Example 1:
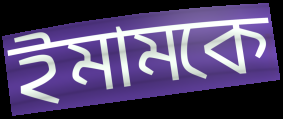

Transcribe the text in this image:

ইমামকে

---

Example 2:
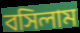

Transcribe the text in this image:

বসিলাম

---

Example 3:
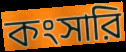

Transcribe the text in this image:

কংসারি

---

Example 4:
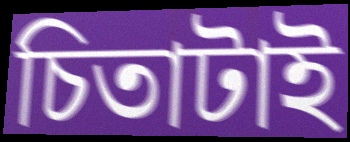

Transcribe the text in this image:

চিতাটাই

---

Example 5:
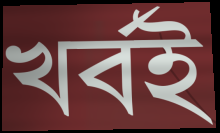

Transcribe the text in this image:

খর্বই